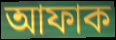
আফাক